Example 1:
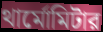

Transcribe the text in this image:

থার্মোমিটার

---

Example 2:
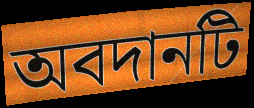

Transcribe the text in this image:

অবদানটি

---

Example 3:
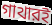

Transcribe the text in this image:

গাথারই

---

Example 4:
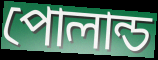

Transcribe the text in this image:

পোলান্ড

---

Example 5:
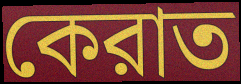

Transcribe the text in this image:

কেরাত